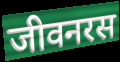
जीवनरस